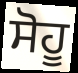
ਸੋਹੂ